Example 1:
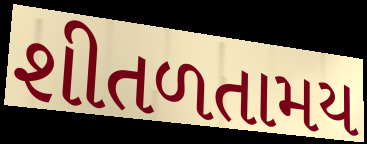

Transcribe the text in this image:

શીતળતામય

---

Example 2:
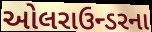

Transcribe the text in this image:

ઓલરાઉન્ડરના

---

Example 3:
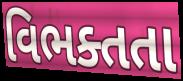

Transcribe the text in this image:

વિભક્તતા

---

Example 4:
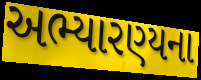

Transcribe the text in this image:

અભ્યારણ્યના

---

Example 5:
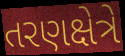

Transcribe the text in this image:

તરણક્ષેત્રે